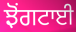
ਝੋਂਗਟਾਈ